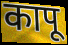
कापू